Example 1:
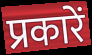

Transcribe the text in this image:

प्रकारें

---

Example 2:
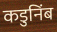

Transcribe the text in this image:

कडुनिंब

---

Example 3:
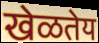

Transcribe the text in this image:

खेळतेय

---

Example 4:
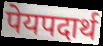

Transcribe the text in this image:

पेयपदार्थ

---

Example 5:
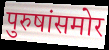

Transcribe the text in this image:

पुरुषांसमोर